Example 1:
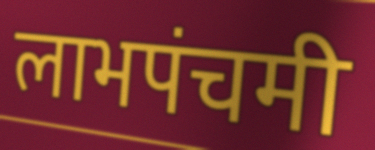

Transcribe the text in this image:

लाभपंचमी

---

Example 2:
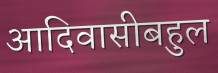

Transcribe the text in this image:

आदिवासीबहुल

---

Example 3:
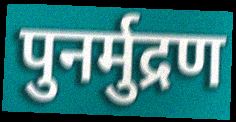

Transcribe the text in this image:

पुनर्मुद्रण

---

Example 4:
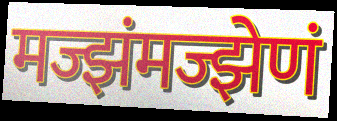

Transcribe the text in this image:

मज्झंमज्झेणं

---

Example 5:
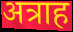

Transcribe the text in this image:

अत्राह